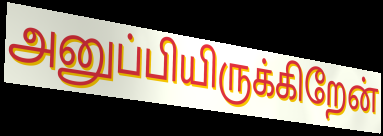
அனுப்பியிருக்கிறேன்